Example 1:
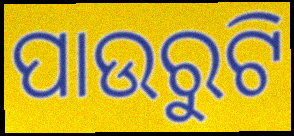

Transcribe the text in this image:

ପାଉରୁଟି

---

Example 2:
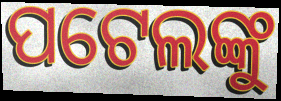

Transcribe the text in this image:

ପଟେଲଙ୍କୁ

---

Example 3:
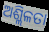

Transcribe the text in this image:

ଅଶ୍ଲିଳତା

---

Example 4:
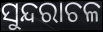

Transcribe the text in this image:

ସୁନ୍ଦରାଚଳ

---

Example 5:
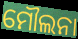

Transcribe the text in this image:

ମୌଲନା